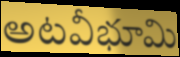
అటవీభూమి